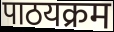
पाठयक्रम